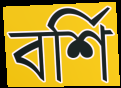
বর্শি